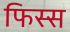
फिस्स